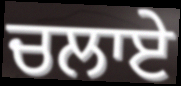
ਚਲਾਏ